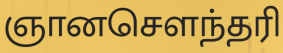
ஞானசெளந்தரி